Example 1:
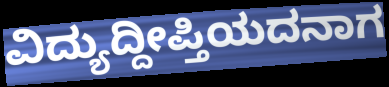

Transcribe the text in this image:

ವಿದ್ಯುದ್ದೀಪ್ತಿಯದನಾಗ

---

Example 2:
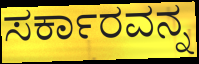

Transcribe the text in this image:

ಸರ್ಕಾರವನ್ನ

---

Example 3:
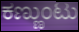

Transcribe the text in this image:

ಕಣ್ಣುಂಟು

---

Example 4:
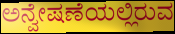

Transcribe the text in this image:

ಅನ್ವೇಷಣೆಯಲ್ಲಿರುವ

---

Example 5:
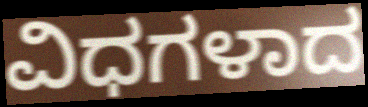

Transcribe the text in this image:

ವಿಧಗಳಾದ